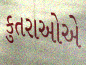
કુતરાઓએ